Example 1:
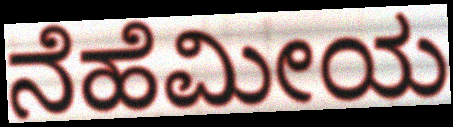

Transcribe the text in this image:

ನೆಹೆಮೀಯ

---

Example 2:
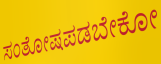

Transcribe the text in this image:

ಸಂತೋಷಪಡಬೇಕೋ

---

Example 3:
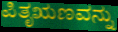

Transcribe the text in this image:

ಪಿತೃಋಣವನ್ನು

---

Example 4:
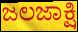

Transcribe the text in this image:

ಜಲಜಾಕ್ಷಿ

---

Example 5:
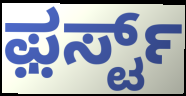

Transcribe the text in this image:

ಫ಼ರ್ಸ್ಟ್